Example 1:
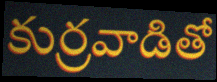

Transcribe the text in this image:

కుర్రవాడితో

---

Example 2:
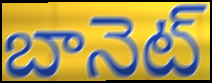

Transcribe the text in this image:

బానెట్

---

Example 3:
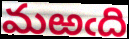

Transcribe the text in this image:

మఱఁది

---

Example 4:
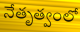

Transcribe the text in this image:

నేతృత్వంలో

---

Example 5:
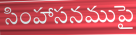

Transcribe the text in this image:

సింహాసనముపై